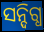
ସନ୍ଦିଗ୍ଧ